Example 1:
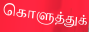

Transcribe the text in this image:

கொளுத்துக்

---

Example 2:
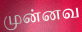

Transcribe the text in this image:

முன்னவ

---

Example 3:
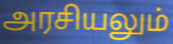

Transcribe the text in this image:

அரசியலும்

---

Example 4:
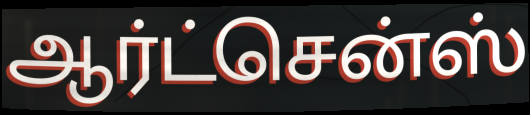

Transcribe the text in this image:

ஆர்ட்சென்ஸ்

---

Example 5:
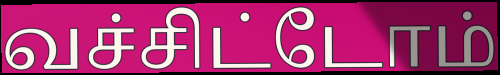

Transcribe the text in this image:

வச்சிட்டோம்